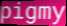
pigmy